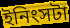
ইনিংসটা